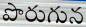
పొరుగున